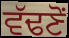
ਵੱਢਣੋਂ